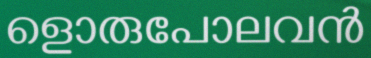
ളൊരുപോലവൻ